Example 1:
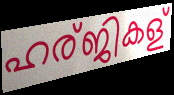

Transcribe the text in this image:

ഹര്ജികള്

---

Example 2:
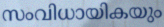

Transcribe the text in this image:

സംവിധായികയും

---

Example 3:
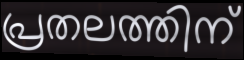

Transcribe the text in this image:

പ്രതലത്തിന്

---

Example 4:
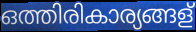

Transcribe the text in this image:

ഒത്തിരികാര്യങ്ങള്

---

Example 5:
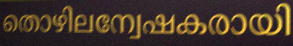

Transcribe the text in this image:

തൊഴിലന്വേഷകരായി